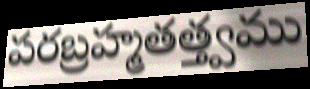
పరబ్రహ్మతత్త్వము